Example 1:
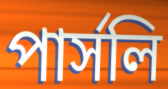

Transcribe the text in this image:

পার্সলি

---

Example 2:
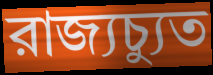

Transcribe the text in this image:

রাজ্যচ্যুত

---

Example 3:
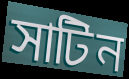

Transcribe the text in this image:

সাটিন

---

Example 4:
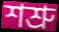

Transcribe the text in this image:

শশ্রু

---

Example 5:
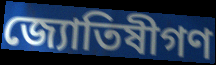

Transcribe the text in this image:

জ্যোতিষীগণ